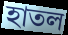
হাতল